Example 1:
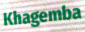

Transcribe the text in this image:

Khagemba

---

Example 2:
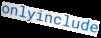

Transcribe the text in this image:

onlyinclude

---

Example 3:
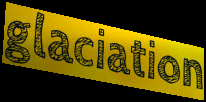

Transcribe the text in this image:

glaciation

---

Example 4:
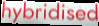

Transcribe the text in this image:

hybridised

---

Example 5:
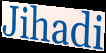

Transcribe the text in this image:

Jihadi